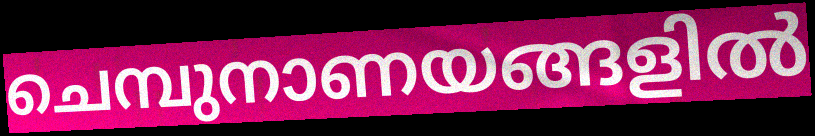
ചെമ്പുനാണയങ്ങളിൽ